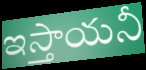
ఇస్తాయనీ